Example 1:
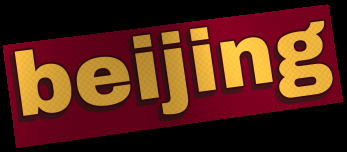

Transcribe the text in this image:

beijing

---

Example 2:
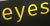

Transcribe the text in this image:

eyes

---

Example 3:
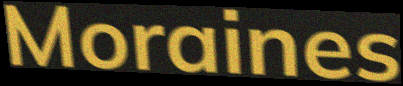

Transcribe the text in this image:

Moraines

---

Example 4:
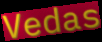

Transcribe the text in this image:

Vedas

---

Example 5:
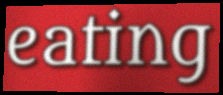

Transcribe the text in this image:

eating